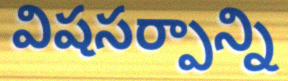
విషసర్పాన్ని